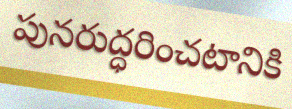
పునరుద్ధరించటానికి